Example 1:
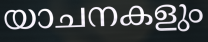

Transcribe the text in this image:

യാചനകളും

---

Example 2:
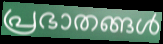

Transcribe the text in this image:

പ്രഭാതങ്ങൾ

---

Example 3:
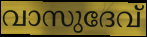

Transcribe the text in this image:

വാസുദേവ്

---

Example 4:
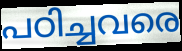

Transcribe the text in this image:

പഠിച്ചവരെ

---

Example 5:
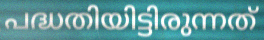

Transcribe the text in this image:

പദ്ധതിയിട്ടിരുന്നത്